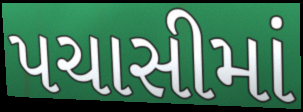
પચાસીમાં